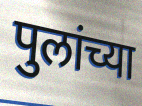
पुलांच्या